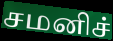
சமனிச்